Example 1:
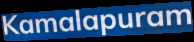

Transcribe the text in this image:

Kamalapuram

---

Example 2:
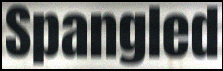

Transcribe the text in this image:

Spangled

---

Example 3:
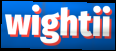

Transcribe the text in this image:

wightii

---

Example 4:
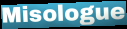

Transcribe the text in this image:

Misologue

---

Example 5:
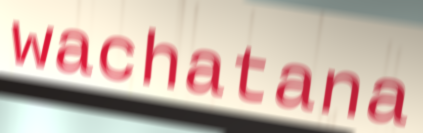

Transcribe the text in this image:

wachatana